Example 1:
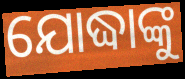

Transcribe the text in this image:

ଯୋଦ୍ଧାଙ୍କୁ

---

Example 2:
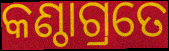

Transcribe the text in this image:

କଣ୍ଠାଗ୍ରତେ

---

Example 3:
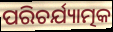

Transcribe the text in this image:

ପରିଚର୍ଯ୍ୟାତ୍ମକ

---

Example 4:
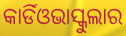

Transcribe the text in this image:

କାର୍ଡିଓଭାସ୍କୁଲାର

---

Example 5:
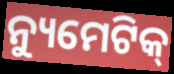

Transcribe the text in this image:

ନ୍ୟୁମେଟିକ୍